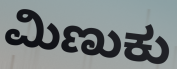
ಮಿಣುಕು